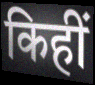
किहीं